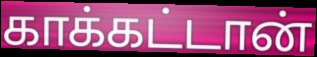
காக்கட்டான்